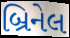
બ્રિનેલ